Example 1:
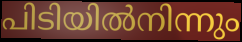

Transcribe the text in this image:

പിടിയിൽനിന്നും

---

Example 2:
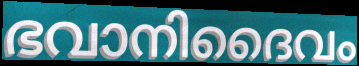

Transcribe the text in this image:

ഭവാനിദൈവം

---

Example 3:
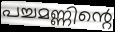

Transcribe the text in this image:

പച്ചമണ്ണിന്റെ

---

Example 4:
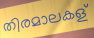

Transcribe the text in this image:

തിരമാലകള്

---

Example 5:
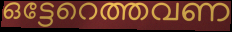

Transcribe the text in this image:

ഒട്ടേറെത്തവണ